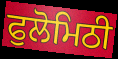
ਫੁਲੋਮਿਠੀ